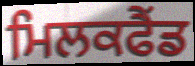
ਮਿਲਕਫੈਂਡ